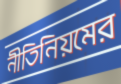
নীতিনিয়মের